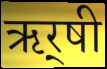
ऋर्षी